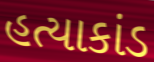
હત્યાકાંડ